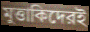
মুত্তাকিদেরই